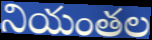
నియంతల